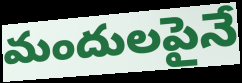
మందులపైనే